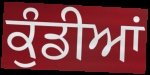
ਕੁੰਡੀਆਂ